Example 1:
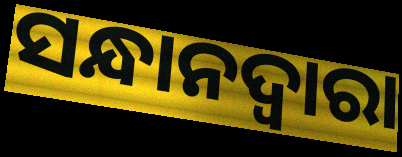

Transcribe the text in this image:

ସନ୍ଧାନଦ୍ୱାରା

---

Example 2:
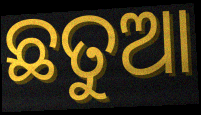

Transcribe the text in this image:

ଛତୁଆ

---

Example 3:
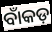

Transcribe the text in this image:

ବାଁକଡ଼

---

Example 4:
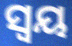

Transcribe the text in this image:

ସ୍ୱୟ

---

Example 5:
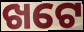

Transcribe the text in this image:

ଖଟେ